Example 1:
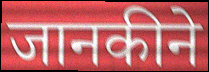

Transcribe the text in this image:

जानकीने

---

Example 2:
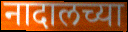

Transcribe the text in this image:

नादालच्या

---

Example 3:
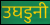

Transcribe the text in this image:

उघडुनी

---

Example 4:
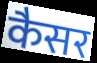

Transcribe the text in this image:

कैसर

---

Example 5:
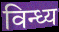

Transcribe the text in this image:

विन्ध्य